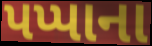
પપ્પાના